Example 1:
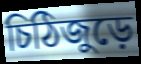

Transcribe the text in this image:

চিঠিজুড়ে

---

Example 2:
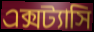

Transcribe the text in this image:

এক্সট্যাসি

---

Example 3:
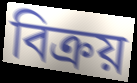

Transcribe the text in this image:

বিক্রয়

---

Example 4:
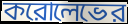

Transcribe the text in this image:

করোলেভের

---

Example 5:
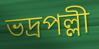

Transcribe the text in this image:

ভদ্রপল্লী